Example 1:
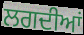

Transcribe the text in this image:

ਲਗਦੀਆਂ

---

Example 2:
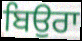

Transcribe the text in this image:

ਬਿਉਰਾ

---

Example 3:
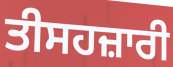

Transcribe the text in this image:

ਤੀਸਹਜ਼ਾਰੀ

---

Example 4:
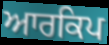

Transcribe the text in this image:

ਆਰਕਿਪ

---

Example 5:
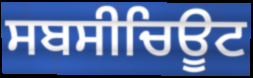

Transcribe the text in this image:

ਸਬਸੀਚਿਊਟ